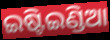
ଇଷ୍ଟିଇଣ୍ଡିଆ